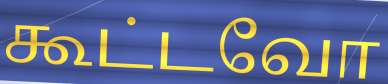
கூட்டவோ